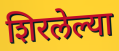
शिरलेल्या